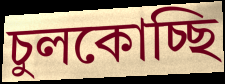
চুলকোচ্ছি